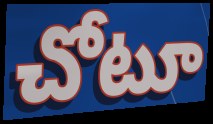
చోటూ